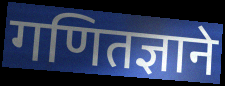
गणितज्ञाने